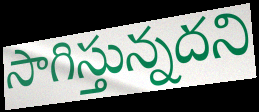
సాగిస్తున్నదని